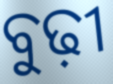
ବୁଢ଼ୀ